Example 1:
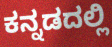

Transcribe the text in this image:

ಕನ್ನಡದಲ್ಲಿ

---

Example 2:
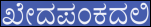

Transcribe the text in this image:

ಖೇದಪಂಕದಲಿ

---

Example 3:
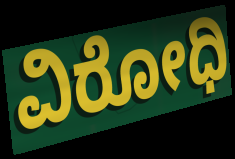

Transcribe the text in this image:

ವಿರೋಧಿ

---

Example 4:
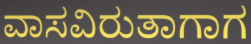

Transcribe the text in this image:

ವಾಸವಿರುತಾಗಾಗ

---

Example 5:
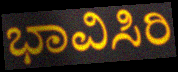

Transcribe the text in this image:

ಭಾವಿಸಿರಿ